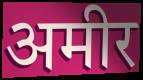
अमीर